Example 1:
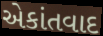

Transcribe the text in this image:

એકાંતવાદ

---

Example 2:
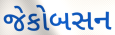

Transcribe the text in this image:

જેકોબસન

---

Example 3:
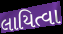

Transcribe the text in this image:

લાયિત્વા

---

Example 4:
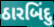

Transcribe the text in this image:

ઠારબિંદુ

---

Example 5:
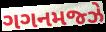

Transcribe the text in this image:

ગગનમજ્ઝે